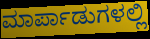
ಮಾರ್ಪಾಡುಗಳಲ್ಲಿ